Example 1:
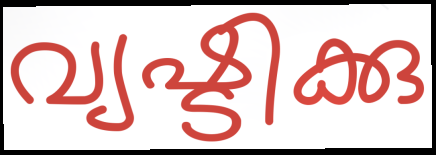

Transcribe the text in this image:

വ്യഷ്ടിക്കു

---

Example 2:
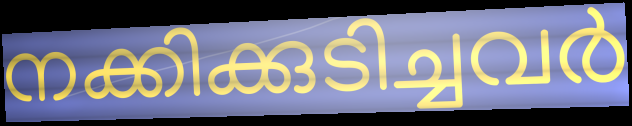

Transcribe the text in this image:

നക്കിക്കുടിച്ചവർ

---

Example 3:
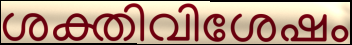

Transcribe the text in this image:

ശക്തിവിശേഷം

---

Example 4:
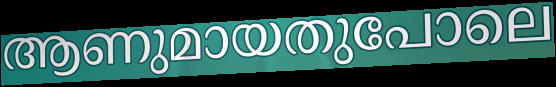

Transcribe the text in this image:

ആണുമായതുപോലെ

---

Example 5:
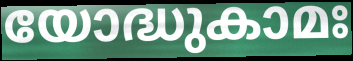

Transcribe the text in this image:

യോദ്ധുകാമഃ